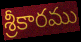
శ్రీకారము